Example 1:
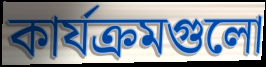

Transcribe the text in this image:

কার্যক্রমগুলো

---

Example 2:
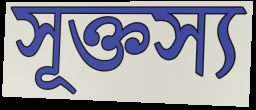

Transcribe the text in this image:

সূক্তস্য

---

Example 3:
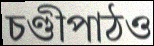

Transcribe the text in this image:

চণ্ডীপাঠও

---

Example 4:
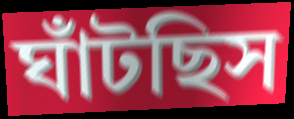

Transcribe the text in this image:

ঘাঁটছিস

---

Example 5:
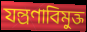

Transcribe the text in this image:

যন্ত্রণাবিমুক্ত